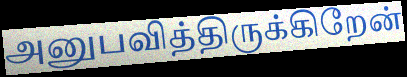
அனுபவித்திருக்கிறேன்